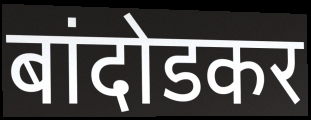
बांदोडकर